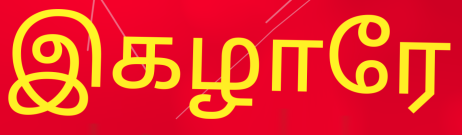
இகழாரே